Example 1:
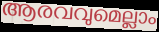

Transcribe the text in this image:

ആരവവുമെല്ലാം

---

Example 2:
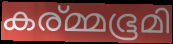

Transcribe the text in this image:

കര്മ്മഭൂമി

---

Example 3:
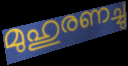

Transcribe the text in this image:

മുഹുരണച്ചു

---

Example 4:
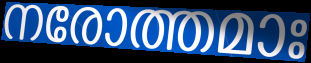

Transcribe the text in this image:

നരോത്തമാഃ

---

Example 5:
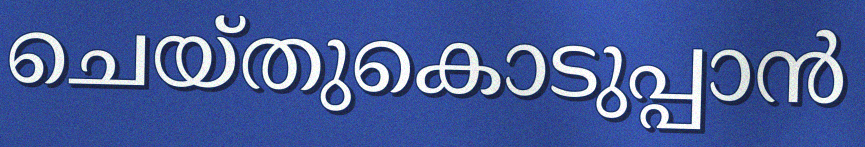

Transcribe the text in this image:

ചെയ്തുകൊടുപ്പാൻ